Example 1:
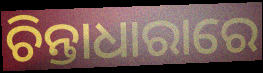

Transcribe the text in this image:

ଚିନ୍ତାଧାରାରେ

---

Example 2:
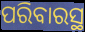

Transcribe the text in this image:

ପରିବାରସ୍ଥ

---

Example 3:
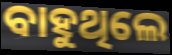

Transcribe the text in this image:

ବାହୁଥିଲେ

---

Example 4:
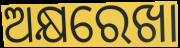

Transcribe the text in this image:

ଅକ୍ଷରେଖା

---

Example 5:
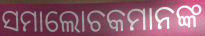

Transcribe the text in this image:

ସମାଲୋଚକମାନଙ୍କ